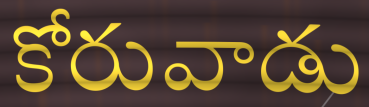
కోరువాడు